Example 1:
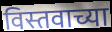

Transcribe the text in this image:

विस्तवाच्या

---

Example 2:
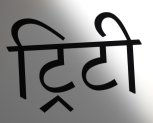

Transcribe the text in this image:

ट्रिटी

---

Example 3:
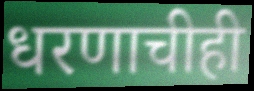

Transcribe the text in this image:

धरणाचीही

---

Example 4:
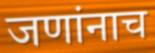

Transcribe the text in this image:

जणांनाच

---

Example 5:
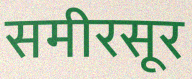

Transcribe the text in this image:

समीरसूर